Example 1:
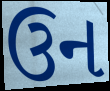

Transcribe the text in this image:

ઉન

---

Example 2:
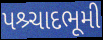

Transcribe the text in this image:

પશ્ર્ચાદભૂમી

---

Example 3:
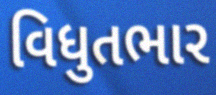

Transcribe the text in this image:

વિધુતભાર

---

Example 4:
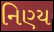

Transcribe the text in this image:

નિણ્ય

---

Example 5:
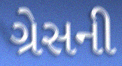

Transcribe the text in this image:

ગ્રેસની